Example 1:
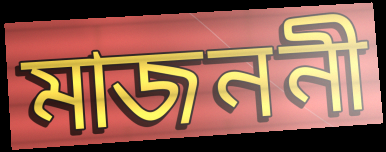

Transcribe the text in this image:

মাজননী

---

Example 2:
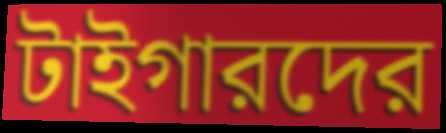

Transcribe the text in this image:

টাইগারদের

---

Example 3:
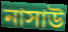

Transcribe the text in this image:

নাসাউ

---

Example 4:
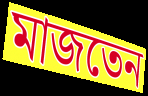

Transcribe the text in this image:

মাজতেন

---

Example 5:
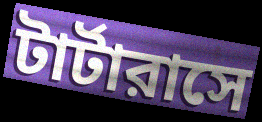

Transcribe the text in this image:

টার্টারাসে